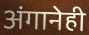
अंगानेही